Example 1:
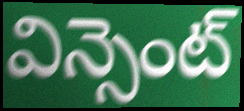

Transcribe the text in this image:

విన్సెంట్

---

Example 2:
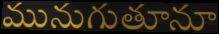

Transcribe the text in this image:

మునుగుతూనూ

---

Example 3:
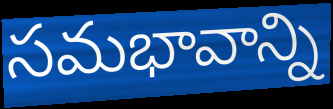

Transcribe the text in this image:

సమభావాన్ని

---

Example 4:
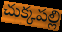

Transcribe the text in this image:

చుక్కపల్లి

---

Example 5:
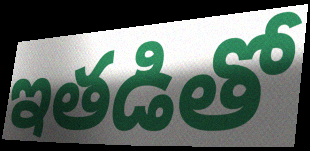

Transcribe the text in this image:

ఇతడితో